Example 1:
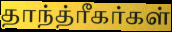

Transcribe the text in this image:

தாந்த்ரீகர்கள்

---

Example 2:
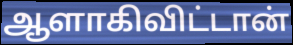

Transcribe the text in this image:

ஆளாகிவிட்டான்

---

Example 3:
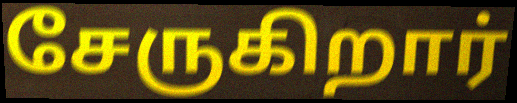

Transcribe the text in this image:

சேருகிறார்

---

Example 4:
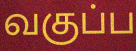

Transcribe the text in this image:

வகுப்ப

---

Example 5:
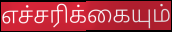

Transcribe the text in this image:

எச்சரிக்கையும்